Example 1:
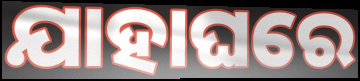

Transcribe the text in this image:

ଯାହାଘରେ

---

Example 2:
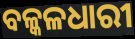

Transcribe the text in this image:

ବଳ୍କଳଧାରୀ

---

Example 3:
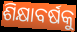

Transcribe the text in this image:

ଶିକ୍ଷାବର୍ଷକୁ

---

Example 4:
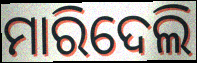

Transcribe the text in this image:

ମାରିଦେଲି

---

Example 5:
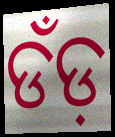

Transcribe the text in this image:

ଡଁଡ଼